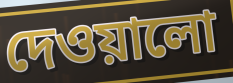
দেওয়ালো